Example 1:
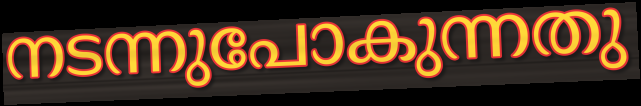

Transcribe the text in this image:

നടന്നുപോകുന്നതു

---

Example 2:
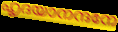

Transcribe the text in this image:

ഹൃദയാനന്ദനേ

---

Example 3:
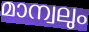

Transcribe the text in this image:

മാന്വലും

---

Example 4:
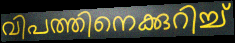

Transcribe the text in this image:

വിപത്തിനെക്കുറിച്ച്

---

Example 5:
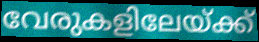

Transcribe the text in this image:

വേരുകളിലേയ്ക്ക്